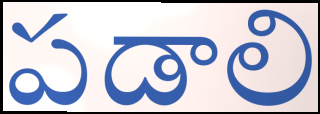
పడాలి